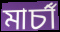
মার্চাঁ